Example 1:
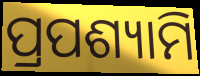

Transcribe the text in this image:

ପ୍ରପଶ୍ୟାମି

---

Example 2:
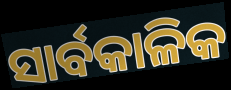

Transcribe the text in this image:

ସାର୍ବକାଳିକ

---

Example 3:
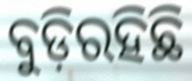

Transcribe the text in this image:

ବୁଡ଼ିରହିଛି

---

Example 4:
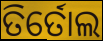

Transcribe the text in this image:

ତିର୍ତୋଲ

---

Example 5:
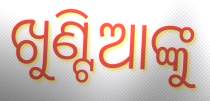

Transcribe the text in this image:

ଖୁଣ୍ଟିଆଙ୍କୁ